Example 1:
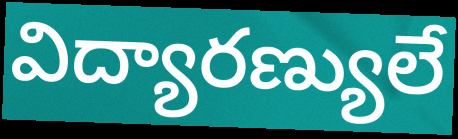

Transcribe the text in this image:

విద్యారణ్యులే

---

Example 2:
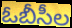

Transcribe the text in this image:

ఓబీసీల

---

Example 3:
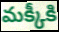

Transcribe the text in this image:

మక్కీకి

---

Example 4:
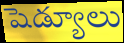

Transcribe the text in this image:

షెడ్యూలు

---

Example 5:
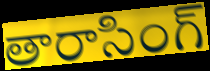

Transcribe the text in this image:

తారాసింగ్